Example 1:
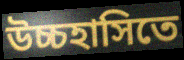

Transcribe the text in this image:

উচ্চহাসিতে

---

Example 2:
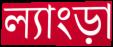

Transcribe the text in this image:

ল্যাংড়া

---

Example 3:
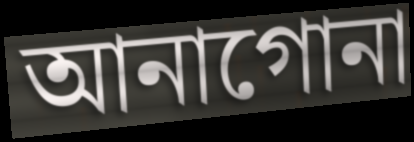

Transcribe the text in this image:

আনাগোনা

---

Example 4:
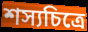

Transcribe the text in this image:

শস্যচিত্রে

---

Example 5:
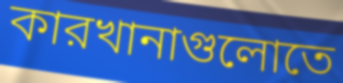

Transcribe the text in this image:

কারখানাগুলোতে